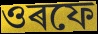
ওৰফে